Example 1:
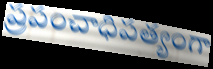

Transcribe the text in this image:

ప్రపంచాధిపత్యంగా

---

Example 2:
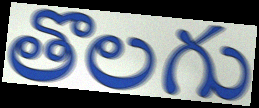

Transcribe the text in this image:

తొలగు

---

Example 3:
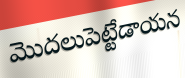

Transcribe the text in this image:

మొదలుపెట్టేడాయన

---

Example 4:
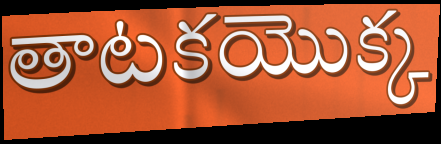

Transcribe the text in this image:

తాటకయొక్క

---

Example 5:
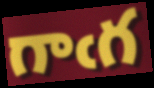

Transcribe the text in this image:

గాఁగ